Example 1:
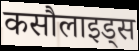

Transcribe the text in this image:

कसौलाइड्स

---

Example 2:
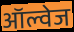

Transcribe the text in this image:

ऑल्वेज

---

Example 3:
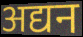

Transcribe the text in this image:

अद्यन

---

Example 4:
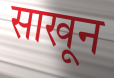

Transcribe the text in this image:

साखून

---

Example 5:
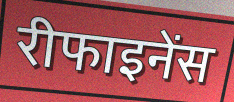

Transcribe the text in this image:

रीफाइनेंस